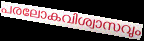
പരലോകവിശ്വാസവും